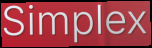
Simplex